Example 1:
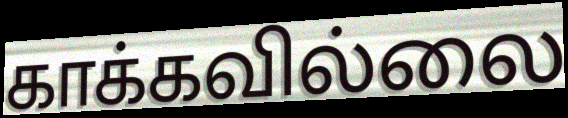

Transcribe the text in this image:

காக்கவில்லை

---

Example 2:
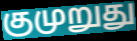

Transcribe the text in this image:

குமுறுது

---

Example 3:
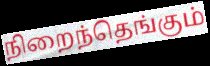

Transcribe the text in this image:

நிறைந்தெங்கும்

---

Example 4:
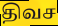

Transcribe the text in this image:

திவச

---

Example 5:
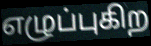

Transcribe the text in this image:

எழுப்புகிற